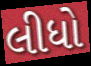
લીધો